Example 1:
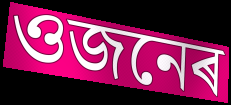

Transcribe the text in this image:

ওজনেৰ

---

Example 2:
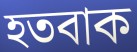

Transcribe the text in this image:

হতবাক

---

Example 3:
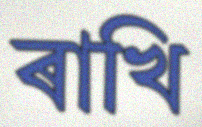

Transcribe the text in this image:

ৰাখি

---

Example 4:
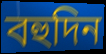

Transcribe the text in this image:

বহুদিন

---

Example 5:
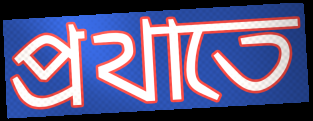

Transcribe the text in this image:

প্ৰথাতে